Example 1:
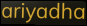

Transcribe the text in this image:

ariyadha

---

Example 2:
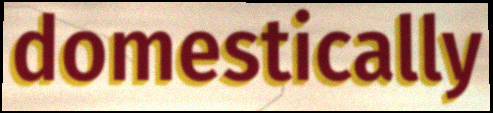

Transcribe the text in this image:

domestically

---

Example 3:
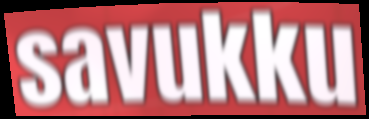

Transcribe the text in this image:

savukku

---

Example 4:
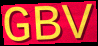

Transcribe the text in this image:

GBV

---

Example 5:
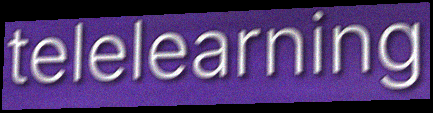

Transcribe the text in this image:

telelearning